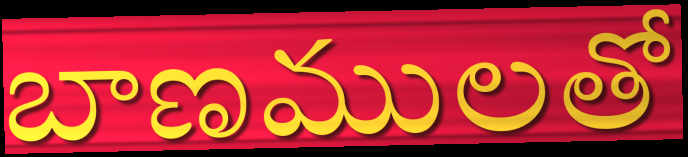
బాణములతో